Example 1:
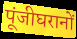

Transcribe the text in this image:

पूंजीघरानों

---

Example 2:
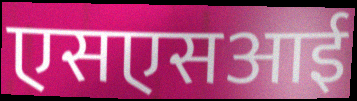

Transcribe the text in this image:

एसएसआई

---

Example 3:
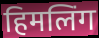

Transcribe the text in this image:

हिमलिंग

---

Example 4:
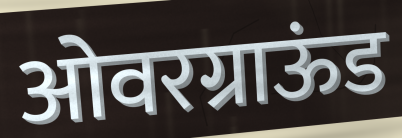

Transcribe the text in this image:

ओवरग्राऊंड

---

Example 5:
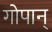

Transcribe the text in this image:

गोपान्